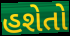
હશેતો